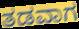
ತಡವಾಗ